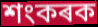
শংকৰক